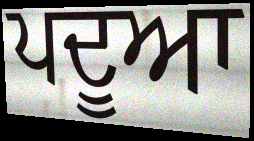
ਪਦੂਆ